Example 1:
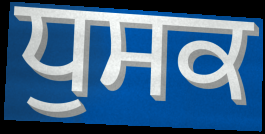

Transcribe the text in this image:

ਧੁਸਕ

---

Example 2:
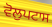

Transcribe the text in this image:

ਵੋਲੁਪਟਾਸ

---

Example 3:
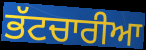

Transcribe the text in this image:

ਭੱਟਚਾਰੀਆ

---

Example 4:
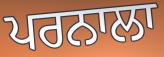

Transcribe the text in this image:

ਪਰਨਾਲਾ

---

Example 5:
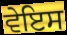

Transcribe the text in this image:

ਵੇਇਸ